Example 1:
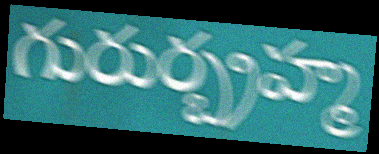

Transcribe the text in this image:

గురుర్బ్రహ్మ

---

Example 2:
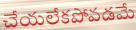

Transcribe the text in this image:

చేయలేకపోవడమే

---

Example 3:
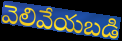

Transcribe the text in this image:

వెలివేయబడి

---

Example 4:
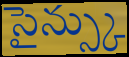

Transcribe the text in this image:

సైన్స్కు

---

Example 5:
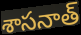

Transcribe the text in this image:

శాసనాత్